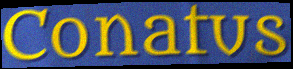
Conatus